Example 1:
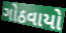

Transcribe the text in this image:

ગોઠવાયો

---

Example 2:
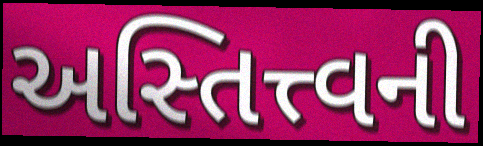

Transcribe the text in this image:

અસ્તિત્ત્વની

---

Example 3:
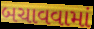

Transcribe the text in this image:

બચાવવામાં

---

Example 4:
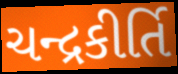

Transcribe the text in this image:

ચન્દ્રકીર્તિ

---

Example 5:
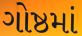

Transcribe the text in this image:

ગોષ્ઠમાં